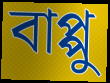
বাপ্পু